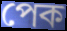
পেক